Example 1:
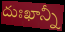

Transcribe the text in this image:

దుఃఖాన్నీ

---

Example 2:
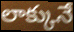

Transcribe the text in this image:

లాక్కునే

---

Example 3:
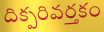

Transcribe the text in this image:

దిక్పరివర్తకం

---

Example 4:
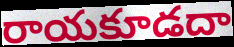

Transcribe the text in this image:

రాయకూడదా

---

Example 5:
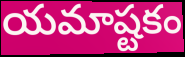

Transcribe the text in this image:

యమాష్టకం